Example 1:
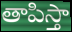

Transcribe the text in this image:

తాపిస్తా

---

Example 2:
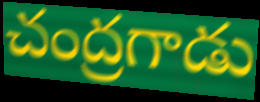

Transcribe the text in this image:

చంద్రగాడు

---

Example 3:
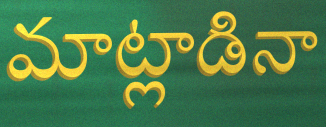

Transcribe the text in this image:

మాట్లాడినా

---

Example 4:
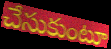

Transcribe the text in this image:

చేసుకుంటూ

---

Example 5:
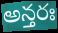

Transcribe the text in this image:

అన్తరః